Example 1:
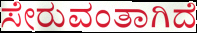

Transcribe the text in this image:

ಸೇರುವಂತಾಗಿದೆ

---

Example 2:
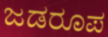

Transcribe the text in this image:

ಜಡರೂಪ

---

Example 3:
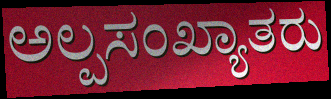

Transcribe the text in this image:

ಅಲ್ಪಸಂಖ್ಯಾತರು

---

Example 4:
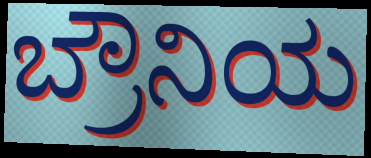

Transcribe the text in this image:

ಬ್ರೌನಿಯ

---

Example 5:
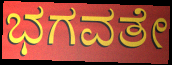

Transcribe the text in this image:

ಭಗವತೇ